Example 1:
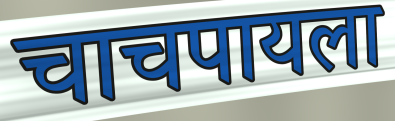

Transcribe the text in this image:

चाचपायला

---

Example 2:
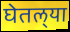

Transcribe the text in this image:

घेतल्या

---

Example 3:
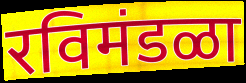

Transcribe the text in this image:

रविमंडळा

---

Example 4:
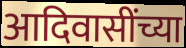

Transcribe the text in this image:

आदिवासींच्या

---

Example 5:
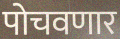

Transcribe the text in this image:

पोचवणार